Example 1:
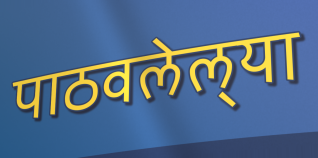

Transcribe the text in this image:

पाठवलेल्या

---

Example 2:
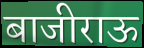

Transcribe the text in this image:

बाजीराऊ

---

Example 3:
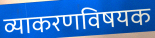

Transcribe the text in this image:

व्याकरणविषयक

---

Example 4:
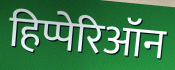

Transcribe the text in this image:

हिप्पेरिऑन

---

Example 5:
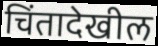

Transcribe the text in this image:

चिंतादेखील